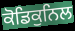
ਕੋਡਿਕੁਨਿਲ